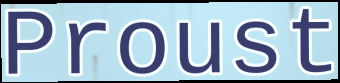
Proust